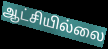
ஆட்சியில்லை